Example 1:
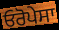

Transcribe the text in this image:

ਓਰੋਪੇਸਾ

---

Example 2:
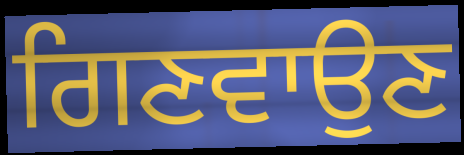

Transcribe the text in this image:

ਗਿਣਵਾਉਣ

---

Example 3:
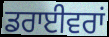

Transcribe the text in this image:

ਡਰਾਈਵਰਾਂ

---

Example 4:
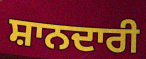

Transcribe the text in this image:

ਸ਼ਾਨਦਾਰੀ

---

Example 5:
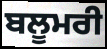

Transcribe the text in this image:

ਬਲੂਮਰੀ